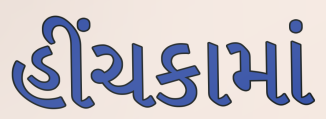
હીંચકામાં